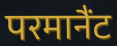
परमानैंट